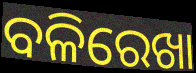
ବଳିରେଖା